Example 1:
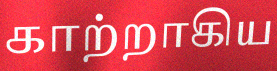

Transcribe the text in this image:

காற்றாகிய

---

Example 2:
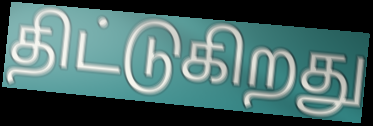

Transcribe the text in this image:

திட்டுகிறது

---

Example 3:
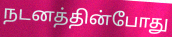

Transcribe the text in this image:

நடனத்தின்போது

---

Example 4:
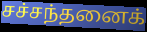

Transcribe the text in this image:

சச்சந்தனைக்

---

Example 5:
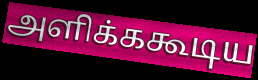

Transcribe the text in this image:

அளிக்ககூடிய